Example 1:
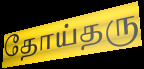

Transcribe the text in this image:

தோய்தரு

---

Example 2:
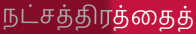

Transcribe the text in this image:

நட்சத்திரத்தைத்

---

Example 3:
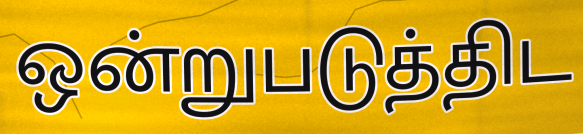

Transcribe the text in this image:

ஒன்றுபடுத்திட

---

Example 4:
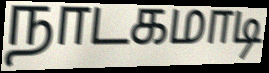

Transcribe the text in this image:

நாடகமாடி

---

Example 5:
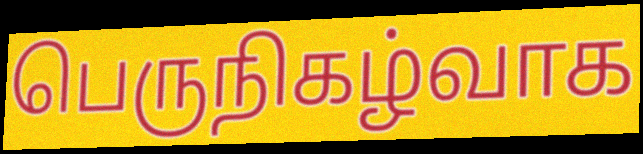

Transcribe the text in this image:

பெருநிகழ்வாக